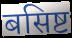
बसिष्ट